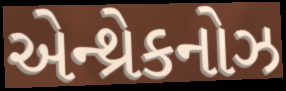
એન્થ્રેકનોઝ